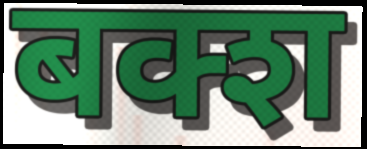
बक्श